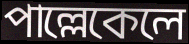
পাল্লেকেলে